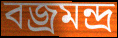
বজ্রমন্দ্র